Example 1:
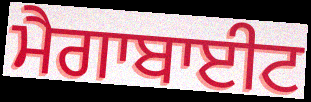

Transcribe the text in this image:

ਮੈਗਾਬਾਈਟ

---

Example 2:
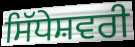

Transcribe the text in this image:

ਸਿੱਧੇਸ਼ਵਰੀ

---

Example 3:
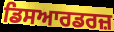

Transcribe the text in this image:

ਡਿਸਆਰਡਰਜ਼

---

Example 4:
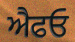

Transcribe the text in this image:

ਐਫਓ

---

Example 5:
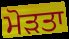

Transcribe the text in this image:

ਮੋੜਤਾ